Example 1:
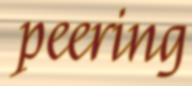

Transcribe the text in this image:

peering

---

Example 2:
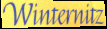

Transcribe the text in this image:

Winternitz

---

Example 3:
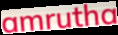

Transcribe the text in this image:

amrutha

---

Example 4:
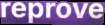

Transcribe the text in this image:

reprove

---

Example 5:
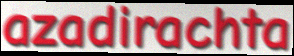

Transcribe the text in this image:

azadirachta